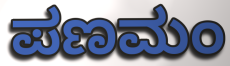
ಪಣಮಂ